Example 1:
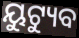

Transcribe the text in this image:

ୟୁଟ୍ୟୁବ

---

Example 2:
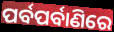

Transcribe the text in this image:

ପର୍ବପର୍ବାଣିରେ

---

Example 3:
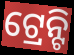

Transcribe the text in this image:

ଟ୍ରେନ୍ଟି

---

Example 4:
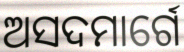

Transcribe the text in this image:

ଅସଦମାର୍ଗେ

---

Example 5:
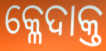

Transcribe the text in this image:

କ୍ଳେଦାକ୍ତ